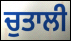
ਚੁਤਾਲੀ